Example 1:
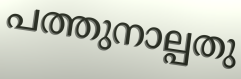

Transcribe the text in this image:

പത്തുനാല്പതു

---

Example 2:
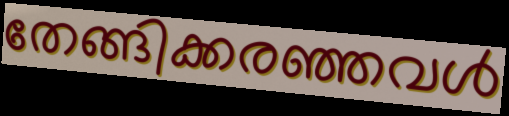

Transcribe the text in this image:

തേങ്ങിക്കരഞ്ഞവൾ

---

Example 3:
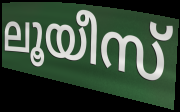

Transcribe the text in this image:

ലൂയീസ്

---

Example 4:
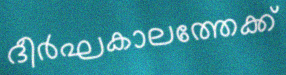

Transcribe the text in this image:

ദീർഘകാലത്തേക്ക്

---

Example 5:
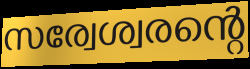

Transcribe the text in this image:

സര്വേശ്വരന്റെ